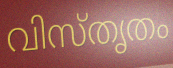
വിസ്തൃതം